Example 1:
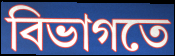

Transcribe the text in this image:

বিভাগতে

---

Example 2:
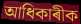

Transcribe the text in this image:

আধিকাৰীক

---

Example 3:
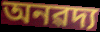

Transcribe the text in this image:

অনৱদ্য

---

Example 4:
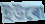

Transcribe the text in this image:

ইউৰো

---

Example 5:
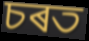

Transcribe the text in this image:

চৰত